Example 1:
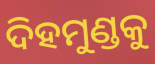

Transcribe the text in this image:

ଦିହମୁଣ୍ଡକୁ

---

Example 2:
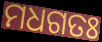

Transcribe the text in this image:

ମଧଗତଃ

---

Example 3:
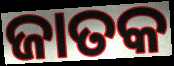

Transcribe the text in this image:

ଜାତକ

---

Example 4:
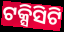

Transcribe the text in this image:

ଟକ୍ସିସିଟି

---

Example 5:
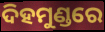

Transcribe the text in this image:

ଦିହମୁଣ୍ଡରେ